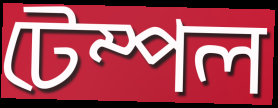
টেম্পল